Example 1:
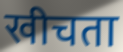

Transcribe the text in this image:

खीचता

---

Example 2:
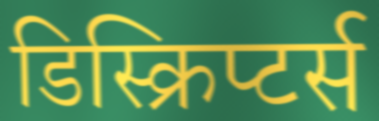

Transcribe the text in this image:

डिस्क्रिप्टर्स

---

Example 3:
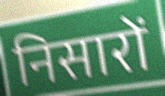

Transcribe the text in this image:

निसारों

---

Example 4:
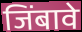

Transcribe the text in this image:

जिंबावे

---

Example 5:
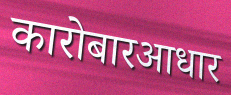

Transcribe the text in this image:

कारोबारआधार